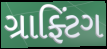
ગ્રાફ્ટિંગ